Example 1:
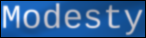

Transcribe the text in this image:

Modesty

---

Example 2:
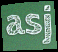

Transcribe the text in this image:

asj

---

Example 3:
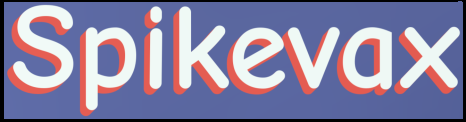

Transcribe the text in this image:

Spikevax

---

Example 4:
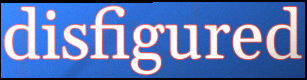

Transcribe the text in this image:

disfigured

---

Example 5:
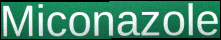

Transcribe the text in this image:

Miconazole